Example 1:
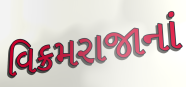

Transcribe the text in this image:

વિક્રમરાજાનાં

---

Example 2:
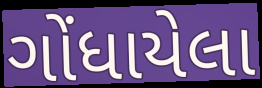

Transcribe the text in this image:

ગોંધાયેલા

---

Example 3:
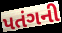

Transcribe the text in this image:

પતંગની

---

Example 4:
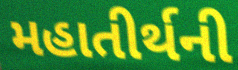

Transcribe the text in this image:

મહાતીર્થની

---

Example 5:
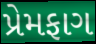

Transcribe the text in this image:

પ્રેમફાગ